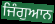
ਜਿੰਗੁਆਨ